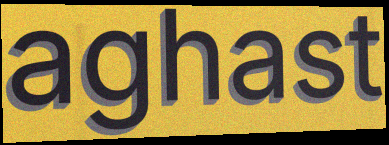
aghast